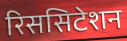
रिससिटेशन